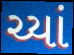
ચ્યાં